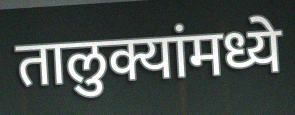
तालुक्यांमध्ये